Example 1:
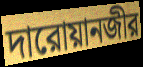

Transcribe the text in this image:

দারোয়ানজীর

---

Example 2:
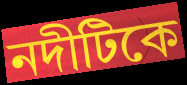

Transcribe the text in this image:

নদীটিকে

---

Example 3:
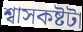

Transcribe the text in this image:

শ্বাসকষ্টটা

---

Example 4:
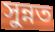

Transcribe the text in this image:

সুন্নত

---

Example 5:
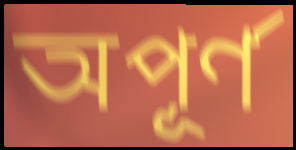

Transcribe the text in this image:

অপূর্ণ